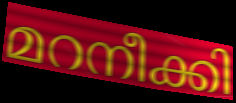
മറനീക്കി